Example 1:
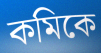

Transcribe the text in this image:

কমিকে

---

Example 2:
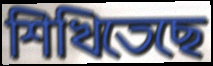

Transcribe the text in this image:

শিখিতেছে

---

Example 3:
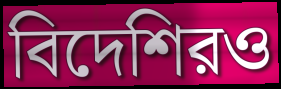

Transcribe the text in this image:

বিদেশিরও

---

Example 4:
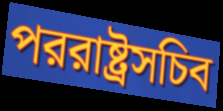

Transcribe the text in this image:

পররাষ্ট্রসচিব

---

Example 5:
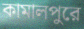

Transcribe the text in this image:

কামালপুরে